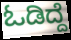
ಓಡಿದ್ದೆ